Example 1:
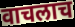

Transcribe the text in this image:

वाचलाच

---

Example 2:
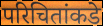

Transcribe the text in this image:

परिचितांकडे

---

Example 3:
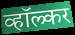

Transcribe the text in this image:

व्हॉल्कर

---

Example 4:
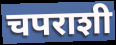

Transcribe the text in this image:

चपराशी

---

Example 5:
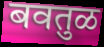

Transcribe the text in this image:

बवतुळ